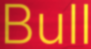
Bull